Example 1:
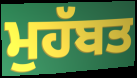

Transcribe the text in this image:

ਮੁਹੱਬਤ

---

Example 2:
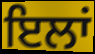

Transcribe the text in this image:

ਇਲਾਂ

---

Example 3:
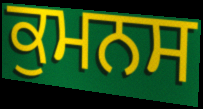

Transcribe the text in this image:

ਕੁਮਨਸ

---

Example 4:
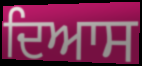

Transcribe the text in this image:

ਦਿਆਸ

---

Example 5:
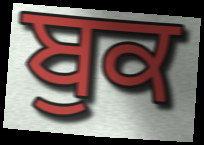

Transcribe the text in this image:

ਬੁਕ